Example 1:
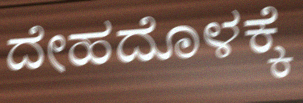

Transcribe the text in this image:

ದೇಹದೊಳಕ್ಕೆ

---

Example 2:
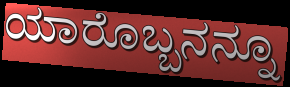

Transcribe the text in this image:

ಯಾರೊಬ್ಬನನ್ನೂ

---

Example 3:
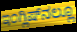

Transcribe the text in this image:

ಇಂಗ್ಲಿಷ್‌ನಲ್ಲೂ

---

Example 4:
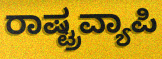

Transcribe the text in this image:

ರಾಷ್ಟ್ರವ್ಯಾಪಿ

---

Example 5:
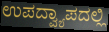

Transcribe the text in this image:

ಉಪದ್ವ್ಯಾಪದಲ್ಲಿ